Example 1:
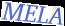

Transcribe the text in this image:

MELA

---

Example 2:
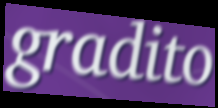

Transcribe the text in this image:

gradito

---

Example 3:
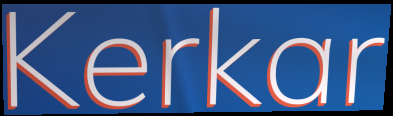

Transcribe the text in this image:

Kerkar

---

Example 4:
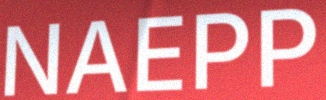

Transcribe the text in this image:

NAEPP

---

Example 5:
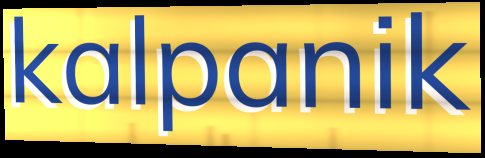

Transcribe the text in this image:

kalpanik